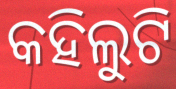
କହିଲୁଟି